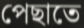
পেছাতে